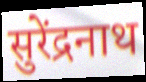
सुरेंद्रनाथ